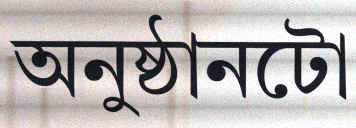
অনুষ্ঠানটো